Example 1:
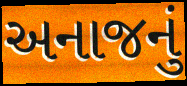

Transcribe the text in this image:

અનાજનું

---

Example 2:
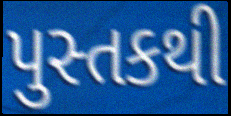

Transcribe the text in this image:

પુસ્તકથી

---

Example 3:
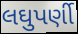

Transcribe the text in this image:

લઘુપર્ણી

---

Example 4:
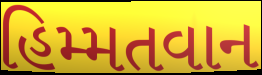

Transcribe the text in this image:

હિમ્મતવાન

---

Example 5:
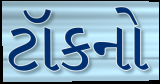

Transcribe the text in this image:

ટૉકનો